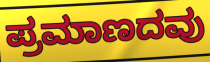
ಪ್ರಮಾಣದವು